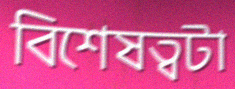
বিশেষত্বটা